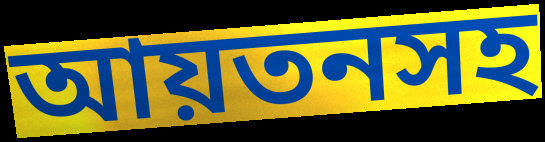
আয়তনসহ